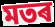
মতৰ